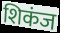
शिकंज